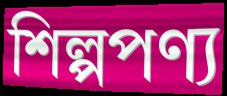
শিল্পপণ্য